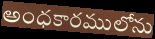
అంధకారములోను